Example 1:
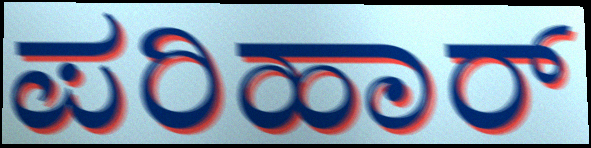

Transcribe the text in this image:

ಪರಿಹಾರ್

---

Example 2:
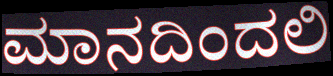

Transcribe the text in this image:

ಮಾನದಿಂದಲಿ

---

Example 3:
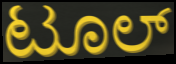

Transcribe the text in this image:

ಟೂಲ್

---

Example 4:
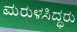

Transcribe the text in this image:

ಮರುಳಸಿದ್ಧರು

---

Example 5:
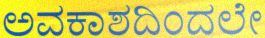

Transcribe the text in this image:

ಅವಕಾಶದಿಂದಲೇ